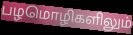
பழமொழிகளிலும்